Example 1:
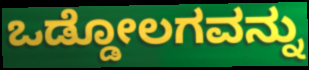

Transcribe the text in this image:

ಒಡ್ಡೋಲಗವನ್ನು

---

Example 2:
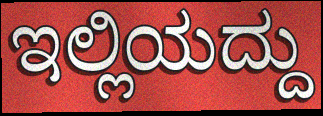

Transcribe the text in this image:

ಇಲ್ಲಿಯದ್ದು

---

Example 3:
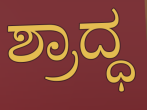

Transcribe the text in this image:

ಶ್ರಾದ್ಧ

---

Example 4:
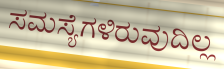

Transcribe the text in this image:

ಸಮಸ್ಯೆಗಳಿರುವುದಿಲ್ಲ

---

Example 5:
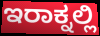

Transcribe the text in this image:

ಇರಾಕ್ನಲ್ಲಿ